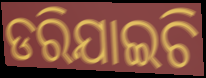
ଡରିଯାଇଚି